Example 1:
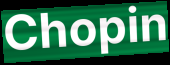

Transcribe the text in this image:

Chopin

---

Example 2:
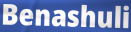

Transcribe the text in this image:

Benashuli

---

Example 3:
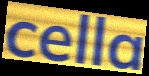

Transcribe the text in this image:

cella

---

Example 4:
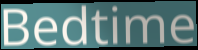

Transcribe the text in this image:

Bedtime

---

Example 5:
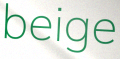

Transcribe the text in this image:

beige